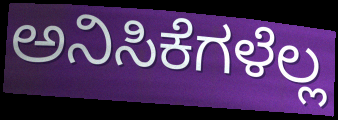
ಅನಿಸಿಕೆಗಳೆಲ್ಲ